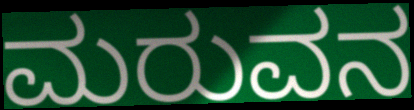
ಮರುವನ